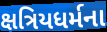
ક્ષત્રિયધર્મના